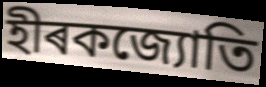
হীৰকজ্যোতি